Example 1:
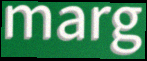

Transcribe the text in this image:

marg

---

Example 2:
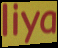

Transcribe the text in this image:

liya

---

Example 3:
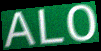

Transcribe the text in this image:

ALO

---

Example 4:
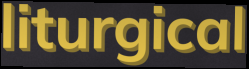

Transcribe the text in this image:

liturgical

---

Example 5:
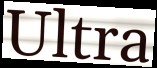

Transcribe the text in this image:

Ultra